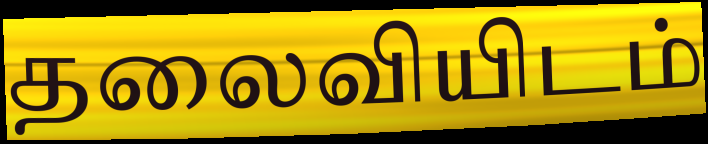
தலைவியிடம்